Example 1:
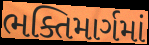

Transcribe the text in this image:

ભક્તિમાર્ગમાં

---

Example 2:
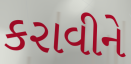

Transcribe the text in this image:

કરાવીને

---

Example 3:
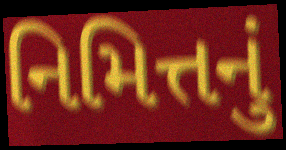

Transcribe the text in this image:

નિમિત્તનું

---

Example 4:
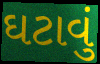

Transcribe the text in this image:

ઘટાવું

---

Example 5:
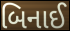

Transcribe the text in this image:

બિનાઈ